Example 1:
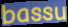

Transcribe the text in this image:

bassu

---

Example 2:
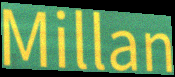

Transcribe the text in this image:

Millan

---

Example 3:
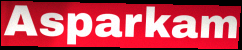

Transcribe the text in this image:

Asparkam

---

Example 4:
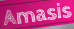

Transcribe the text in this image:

Amasis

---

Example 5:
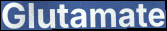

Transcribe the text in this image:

Glutamate